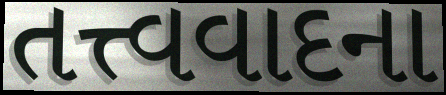
તત્ત્વવાદના